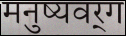
मनुष्यवर्ग